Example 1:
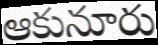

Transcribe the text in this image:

ఆకునూరు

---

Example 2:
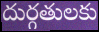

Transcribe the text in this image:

దుర్గతులకు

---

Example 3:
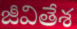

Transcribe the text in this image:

జీవితేశ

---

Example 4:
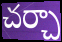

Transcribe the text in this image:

చర్చా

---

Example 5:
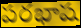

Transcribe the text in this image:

పరభాష